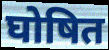
घोषित